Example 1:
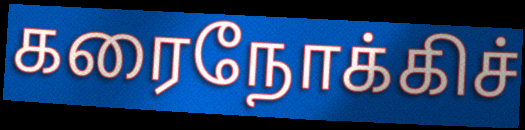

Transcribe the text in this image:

கரைநோக்கிச்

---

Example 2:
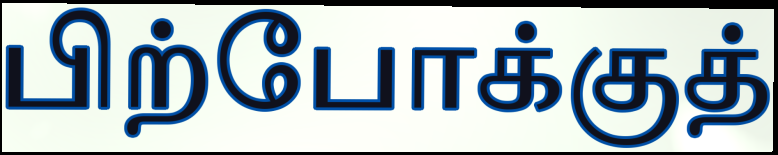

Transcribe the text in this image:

பிற்போக்குத்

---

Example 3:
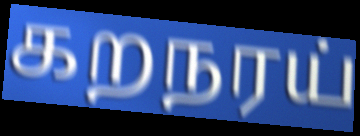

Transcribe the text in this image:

கறநரய்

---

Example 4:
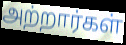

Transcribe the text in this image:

அற்றார்கள்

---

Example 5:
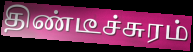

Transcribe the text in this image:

திண்டீச்சுரம்